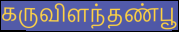
கருவிளந்தண்பூ